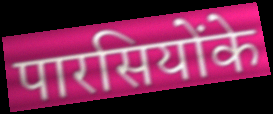
पारसियोंके